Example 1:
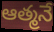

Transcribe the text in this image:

ఆత్మనే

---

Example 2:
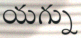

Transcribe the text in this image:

యగ్ను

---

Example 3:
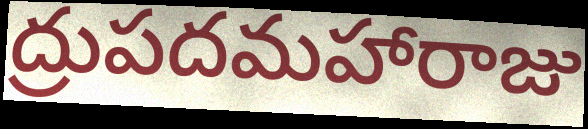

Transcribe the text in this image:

ద్రుపదమహారాజు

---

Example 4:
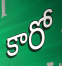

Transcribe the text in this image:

కారో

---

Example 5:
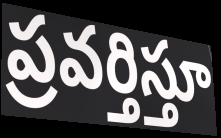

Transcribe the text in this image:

ప్రవర్తిస్తూ